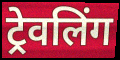
ट्रेवलिंग